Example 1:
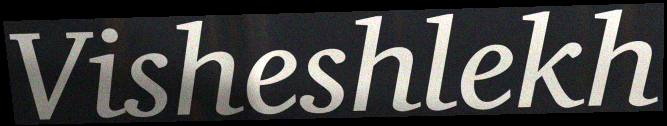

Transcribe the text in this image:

Visheshlekh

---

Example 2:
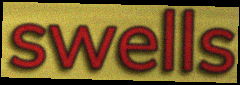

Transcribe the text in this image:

swells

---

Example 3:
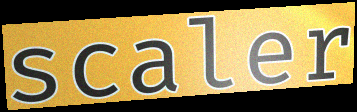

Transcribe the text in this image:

scaler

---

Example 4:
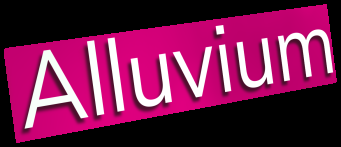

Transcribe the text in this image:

Alluvium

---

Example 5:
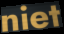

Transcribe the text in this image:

niet